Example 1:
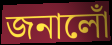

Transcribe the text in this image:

জনালোঁ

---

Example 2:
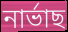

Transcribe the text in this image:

নাৰ্ভাছ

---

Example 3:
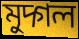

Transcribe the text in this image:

মুদ্গল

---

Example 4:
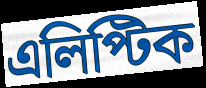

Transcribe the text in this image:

এলিপ্টিক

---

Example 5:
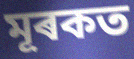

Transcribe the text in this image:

মূৰকত